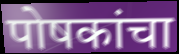
पोषकांचा